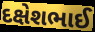
દક્ષેશભાઈ